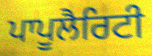
ਪਾਪੂਲੈਰਿਟੀ